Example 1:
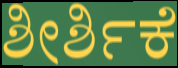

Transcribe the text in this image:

ಶೀರ್ಶಿಕೆ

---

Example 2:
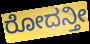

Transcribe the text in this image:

ರೋದನ್ತೀ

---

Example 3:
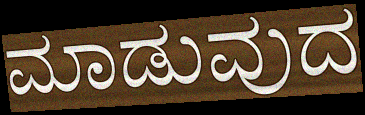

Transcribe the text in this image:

ಮಾಡುವುದ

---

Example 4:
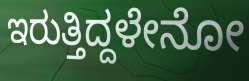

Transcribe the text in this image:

ಇರುತ್ತಿದ್ದಳೇನೋ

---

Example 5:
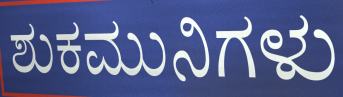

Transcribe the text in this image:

ಶುಕಮುನಿಗಳು